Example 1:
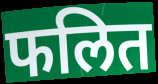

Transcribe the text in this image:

फलित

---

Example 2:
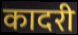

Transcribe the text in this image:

कादरी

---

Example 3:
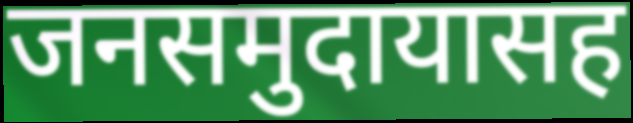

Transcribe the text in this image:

जनसमुदायासह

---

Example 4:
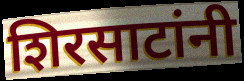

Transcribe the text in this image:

शिरसाटांनी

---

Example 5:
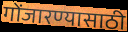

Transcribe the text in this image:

गोंजारण्यासाठी